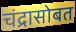
चंद्रासोबत